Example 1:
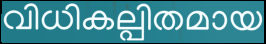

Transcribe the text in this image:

വിധികല്പിതമായ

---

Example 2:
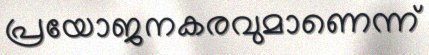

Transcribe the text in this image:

പ്രയോജനകരവുമാണെന്ന്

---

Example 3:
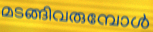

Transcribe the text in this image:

മടങ്ങിവരുമ്പോൾ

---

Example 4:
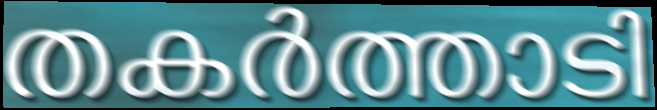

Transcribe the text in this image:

തകർത്താടി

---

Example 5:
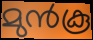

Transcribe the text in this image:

മുൻകൂ